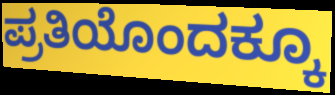
ಪ್ರತಿಯೊಂದಕ್ಕೂ